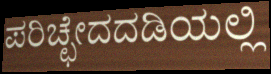
ಪರಿಚ್ಛೇದದಡಿಯಲ್ಲಿ